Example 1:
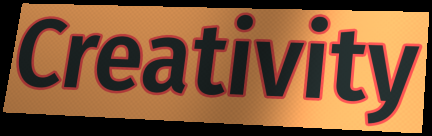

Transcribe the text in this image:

Creativity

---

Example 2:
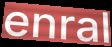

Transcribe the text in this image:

enral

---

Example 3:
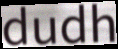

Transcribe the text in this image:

dudh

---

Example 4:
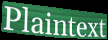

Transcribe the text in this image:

Plaintext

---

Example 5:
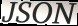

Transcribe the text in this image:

JSON